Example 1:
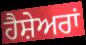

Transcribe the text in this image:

ਹੈਸ਼ੇਅਰਾਂ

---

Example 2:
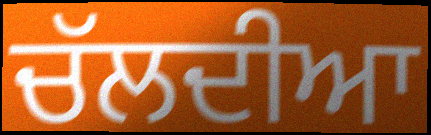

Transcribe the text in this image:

ਚੱਲਦੀਆ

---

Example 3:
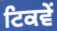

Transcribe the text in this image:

ਟਿਕਵੇਂ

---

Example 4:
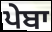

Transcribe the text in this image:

ਪੇਬਾ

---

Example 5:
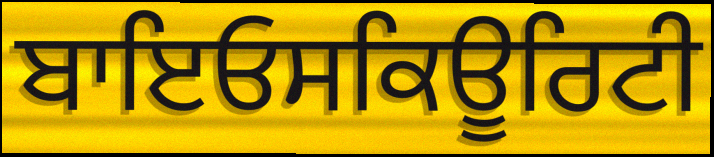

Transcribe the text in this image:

ਬਾਇਓਸਕਿਊਰਿਟੀ